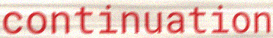
continuation